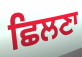
ਛਿਲਣਾ